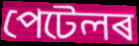
পেটেলৰ